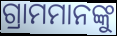
ଗ୍ରାମମାନଙ୍କୁ